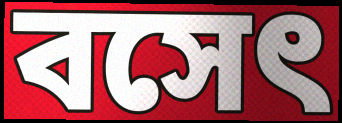
বসেৎ